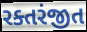
રક્તરંજીત